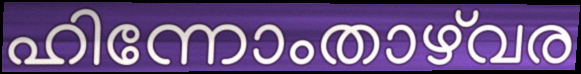
ഹിന്നോംതാഴ്‌വര